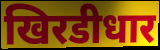
खिरडीधार